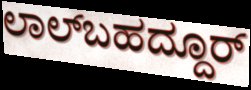
ಲಾಲ್‌ಬಹದ್ದೂರ್